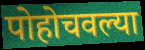
पोहोचवल्या